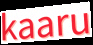
kaaru